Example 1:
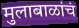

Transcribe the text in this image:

मुलाबाळांचं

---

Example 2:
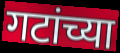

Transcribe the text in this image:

गटांच्या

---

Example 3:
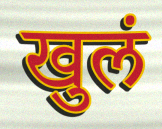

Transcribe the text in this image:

खुलं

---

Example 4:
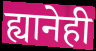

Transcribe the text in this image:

ह्यानेही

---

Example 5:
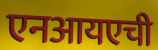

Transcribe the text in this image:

एनआयएची